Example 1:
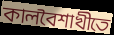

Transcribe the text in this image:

কালবৈশাখীতে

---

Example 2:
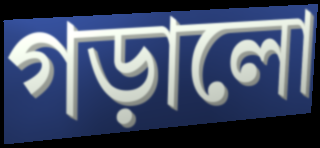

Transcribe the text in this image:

গড়ালো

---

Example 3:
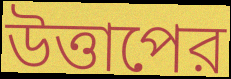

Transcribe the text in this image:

উত্তাপের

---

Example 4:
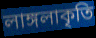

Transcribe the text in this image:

লাঙ্গলাকৃতি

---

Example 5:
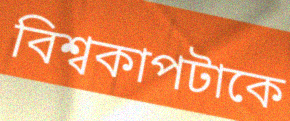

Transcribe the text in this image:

বিশ্বকাপটাকে